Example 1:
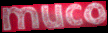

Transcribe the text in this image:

muco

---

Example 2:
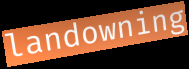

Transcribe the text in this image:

landowning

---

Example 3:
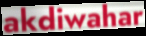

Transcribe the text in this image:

akdiwahar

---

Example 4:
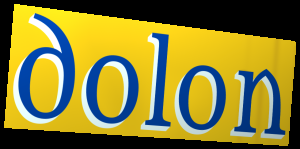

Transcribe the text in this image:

dolon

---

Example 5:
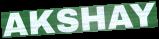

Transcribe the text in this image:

AKSHAY